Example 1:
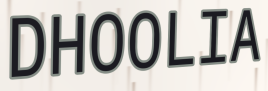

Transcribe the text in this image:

DHOOLIA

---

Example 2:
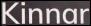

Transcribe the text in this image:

Kinnar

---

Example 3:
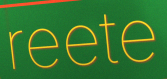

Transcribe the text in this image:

reete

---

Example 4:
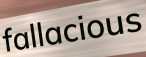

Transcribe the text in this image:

fallacious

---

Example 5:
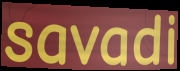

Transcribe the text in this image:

savadi